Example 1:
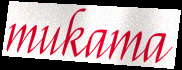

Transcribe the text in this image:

mukama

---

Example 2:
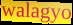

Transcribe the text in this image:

walagyo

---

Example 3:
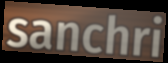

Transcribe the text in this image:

sanchri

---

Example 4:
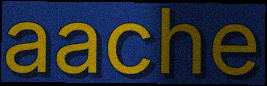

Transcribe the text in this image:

aache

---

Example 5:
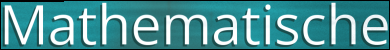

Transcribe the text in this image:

Mathematische